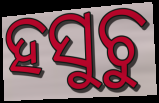
ହସୁଚୁ